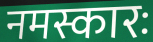
नमस्कारः